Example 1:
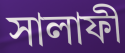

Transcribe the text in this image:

সালাফী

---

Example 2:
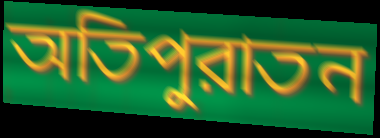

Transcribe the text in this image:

অতিপুরাতন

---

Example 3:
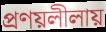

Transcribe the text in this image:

প্রণয়লীলায়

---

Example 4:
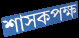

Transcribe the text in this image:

শাসকপক্ষ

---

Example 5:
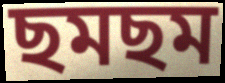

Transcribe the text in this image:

ছমছম